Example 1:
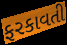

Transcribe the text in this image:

ફરકાવતી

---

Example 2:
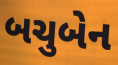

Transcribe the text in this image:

બચુબેન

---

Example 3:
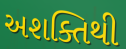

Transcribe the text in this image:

અશક્તિથી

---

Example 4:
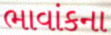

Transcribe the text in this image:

ભાવાંકના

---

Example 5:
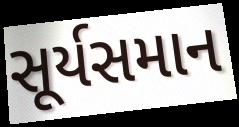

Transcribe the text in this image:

સૂર્યસમાન